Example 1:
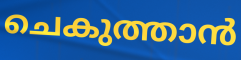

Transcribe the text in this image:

ചെകുത്താൻ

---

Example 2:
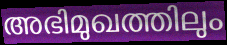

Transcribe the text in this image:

അഭിമുഖത്തിലും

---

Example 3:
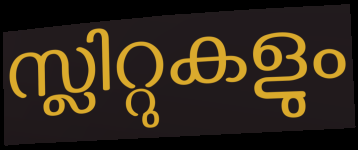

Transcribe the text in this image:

സ്ലിറ്റുകളും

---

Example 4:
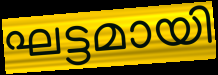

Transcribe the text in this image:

ഘട്ടമായി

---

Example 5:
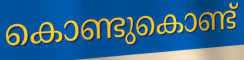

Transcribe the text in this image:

കൊണ്ടുകൊണ്ട്